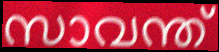
സാവന്ത്